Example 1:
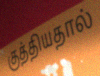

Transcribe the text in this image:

குத்தியதால்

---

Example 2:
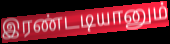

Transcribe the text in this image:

இரண்டடியானும்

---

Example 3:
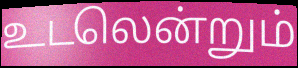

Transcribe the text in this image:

உடலென்றும்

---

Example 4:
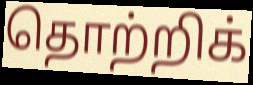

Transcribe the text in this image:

தொற்றிக்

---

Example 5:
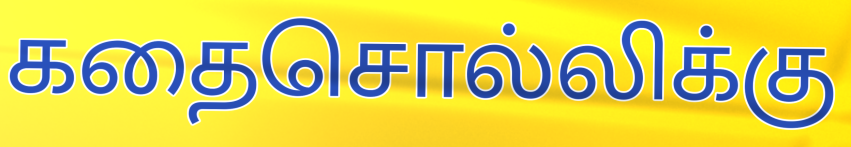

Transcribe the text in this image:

கதைசொல்லிக்கு